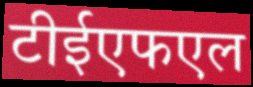
टीईएफएल